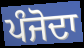
ਪੰਜੋਦਾ